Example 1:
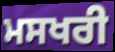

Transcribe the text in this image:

ਮਸਖਰੀ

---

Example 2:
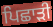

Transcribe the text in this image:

ਪਿਛਾੜੀ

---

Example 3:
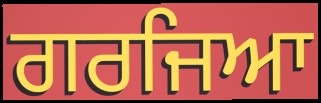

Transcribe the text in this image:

ਗਰਜਿਆ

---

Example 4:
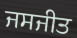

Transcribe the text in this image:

ਜਸਜੀਤ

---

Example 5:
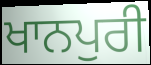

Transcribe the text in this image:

ਖਾਨਪੁਰੀ